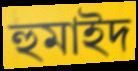
হুমাইদ